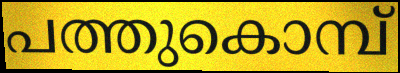
പത്തുകൊമ്പ്